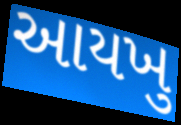
આયખુ